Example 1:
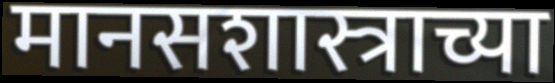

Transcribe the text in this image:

मानसशास्त्राच्या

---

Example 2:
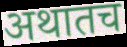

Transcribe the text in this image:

अथातच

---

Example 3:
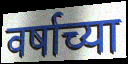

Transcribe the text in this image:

वर्षाच्या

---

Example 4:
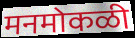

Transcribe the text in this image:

मनमोकळी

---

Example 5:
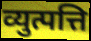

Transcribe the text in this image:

व्युत्पत्ति